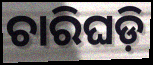
ଚାରିଘଡ଼ି